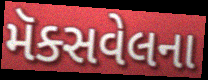
મૅક્સવેલના